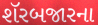
શૅરબજારના